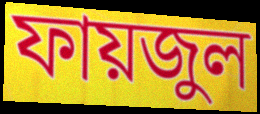
ফায়জুল